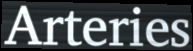
Arteries